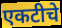
एकटीचे